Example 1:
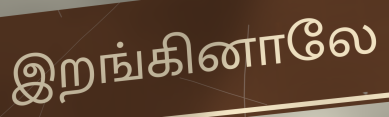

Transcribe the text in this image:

இறங்கினாலே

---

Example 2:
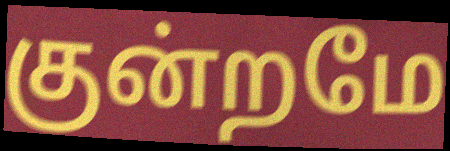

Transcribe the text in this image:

குன்றமே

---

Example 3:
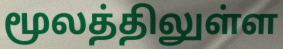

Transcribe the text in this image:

மூலத்திலுள்ள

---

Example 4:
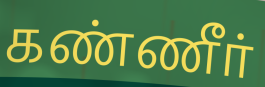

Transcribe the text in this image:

கண்ணீர்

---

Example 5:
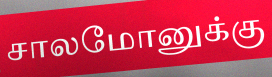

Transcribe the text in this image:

சாலமோனுக்கு